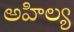
అహిల్య